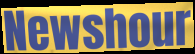
Newshour